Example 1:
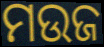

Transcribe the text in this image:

ମଉଜ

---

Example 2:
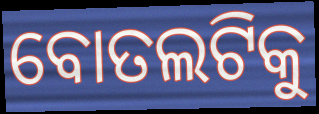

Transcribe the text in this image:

ବୋତଲଟିକୁ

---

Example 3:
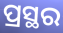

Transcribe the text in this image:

ପ୍ରସ୍ଥର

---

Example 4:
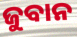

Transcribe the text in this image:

ଜୁବାନ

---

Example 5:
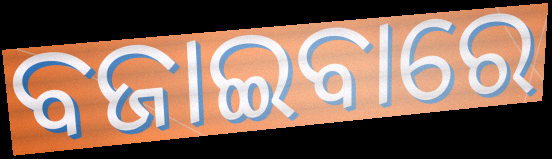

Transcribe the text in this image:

ବଜାଇବାରେ